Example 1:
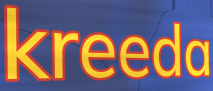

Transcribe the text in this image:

kreeda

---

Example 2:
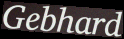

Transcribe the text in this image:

Gebhard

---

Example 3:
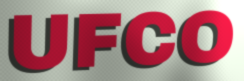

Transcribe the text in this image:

UFCO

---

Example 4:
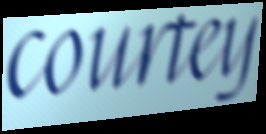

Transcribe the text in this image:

courtey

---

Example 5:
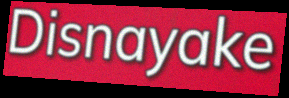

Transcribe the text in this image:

Disnayake